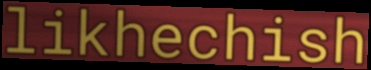
likhechish